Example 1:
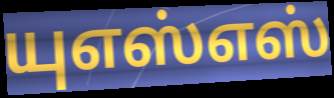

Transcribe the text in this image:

யுஎஸ்எஸ்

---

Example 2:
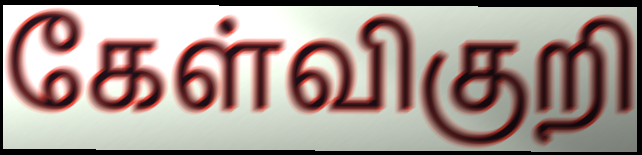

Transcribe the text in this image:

கேள்விகுறி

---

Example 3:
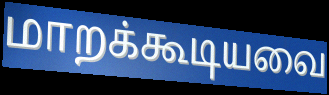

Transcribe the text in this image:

மாறக்கூடியவை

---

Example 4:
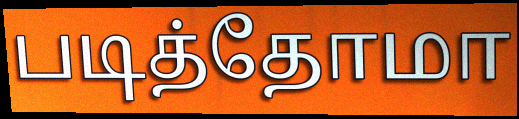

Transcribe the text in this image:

படித்தோமா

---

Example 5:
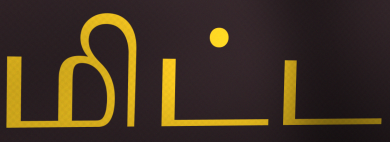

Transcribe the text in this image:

மிட்ட